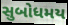
સુબોધમય